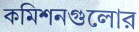
কমিশনগুলোর